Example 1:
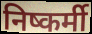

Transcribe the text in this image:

निष्कर्मी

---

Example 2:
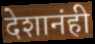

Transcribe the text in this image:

देशानंही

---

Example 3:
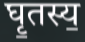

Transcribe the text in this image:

घृ॒तस्य॒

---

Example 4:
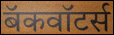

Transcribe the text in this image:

बॅकवॉटर्स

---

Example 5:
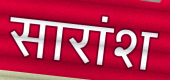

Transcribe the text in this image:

सारांश